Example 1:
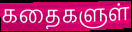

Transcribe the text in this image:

கதைகளுள்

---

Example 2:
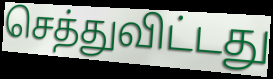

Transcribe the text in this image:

செத்துவிட்டது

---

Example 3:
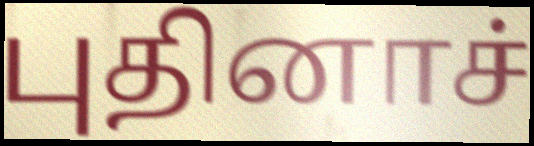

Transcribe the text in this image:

புதினாச்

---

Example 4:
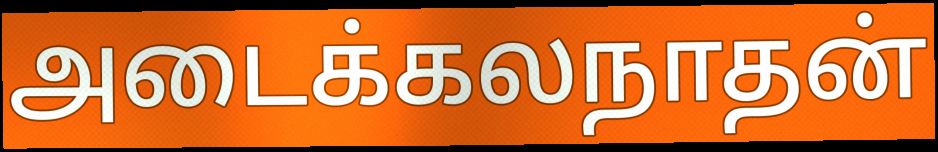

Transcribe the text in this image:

அடைக்கலநாதன்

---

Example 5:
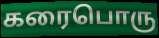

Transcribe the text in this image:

கரைபொரு